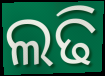
ଲଢି